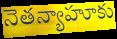
నెతన్యాహూకు